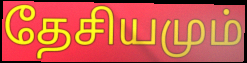
தேசியமும்